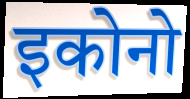
इकोनो